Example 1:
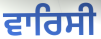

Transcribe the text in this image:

ਵਾਰਿਸੀ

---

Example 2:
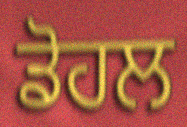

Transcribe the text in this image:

ਡੋਹਲ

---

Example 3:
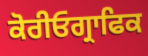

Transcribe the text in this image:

ਕੋਰੀਓਗ੍ਰਾਫਿਕ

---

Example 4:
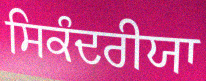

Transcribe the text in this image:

ਸਿਕੰਦਰੀਯਾ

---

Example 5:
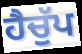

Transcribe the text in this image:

ਹੈਚੁੱਪ